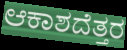
ಆಕಾಶದೆತ್ತರ